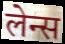
लेन्स